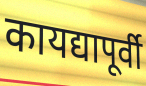
कायद्यापूर्वी